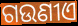
ଗଉଣୀଏ